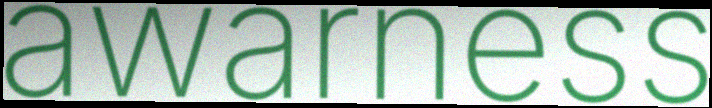
awarness